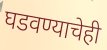
घडवण्याचेही